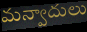
మన్వాదులు